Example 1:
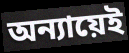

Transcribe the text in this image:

অন্যায়েই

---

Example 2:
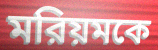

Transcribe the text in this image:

মরিয়মকে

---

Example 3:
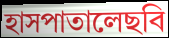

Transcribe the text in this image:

হাসপাতালেছবি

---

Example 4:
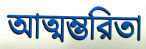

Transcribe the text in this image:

আত্মম্ভরিতা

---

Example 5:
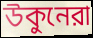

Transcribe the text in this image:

উকুনেরা